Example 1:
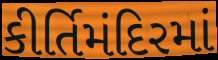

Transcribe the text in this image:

કીર્તિમંદિરમાં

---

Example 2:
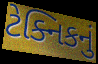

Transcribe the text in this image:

ટેક્નિકનું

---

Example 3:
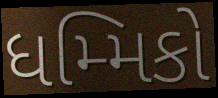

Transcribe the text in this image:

ધમ્મિકો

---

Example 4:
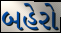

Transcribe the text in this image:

બહેરો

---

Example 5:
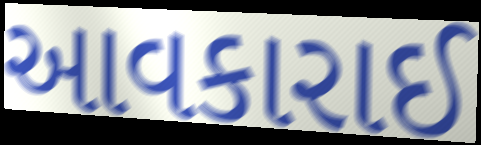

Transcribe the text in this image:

આવકારાઈ